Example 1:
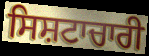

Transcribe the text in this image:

ਸਿਸ਼ਟਾਚਾਰੀ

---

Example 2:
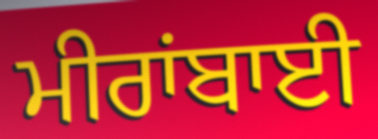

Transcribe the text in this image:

ਮੀਰਾਂਬਾਈ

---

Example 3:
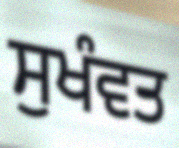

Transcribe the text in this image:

ਸੁਖੰਵਤ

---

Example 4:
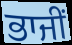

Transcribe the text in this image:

ਭਾਜੀਂ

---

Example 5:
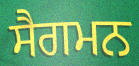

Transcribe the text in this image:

ਸੈਗਮਨ